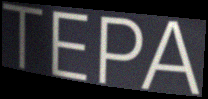
TEPA